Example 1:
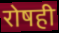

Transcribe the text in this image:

रोषही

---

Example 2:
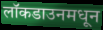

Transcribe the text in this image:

लॉकडाउनमधून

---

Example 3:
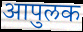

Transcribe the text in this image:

आपुलक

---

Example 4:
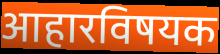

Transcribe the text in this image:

आहारविषयक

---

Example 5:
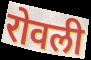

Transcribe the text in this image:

रोवली